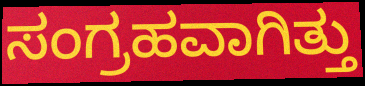
ಸಂಗ್ರಹವಾಗಿತ್ತು